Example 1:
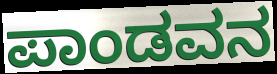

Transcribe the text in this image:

ಪಾಂಡವನ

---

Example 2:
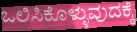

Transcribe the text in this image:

ಒಲಿಸಿಕೊಳ್ಳುವುದಕ್ಕೆ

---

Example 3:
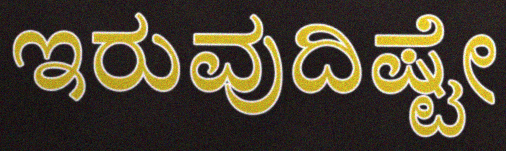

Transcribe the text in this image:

ಇರುವುದಿಷ್ಟೇ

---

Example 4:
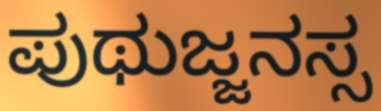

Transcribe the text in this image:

ಪುಥುಜ್ಜನಸ್ಸ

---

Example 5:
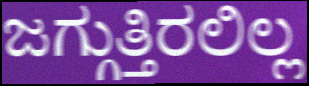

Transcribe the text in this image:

ಜಗ್ಗುತ್ತಿರಲಿಲ್ಲ